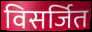
विसर्जित